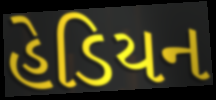
હેડિયન